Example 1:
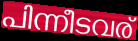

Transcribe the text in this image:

പിന്നീടവര്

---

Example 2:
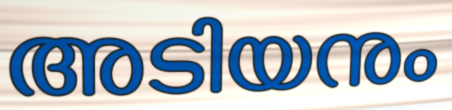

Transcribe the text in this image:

അടിയനും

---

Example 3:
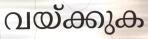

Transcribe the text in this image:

വയ്ക്കുക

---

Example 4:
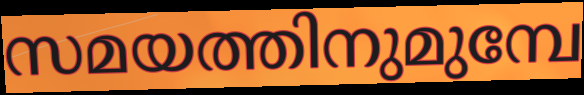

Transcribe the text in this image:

സമയത്തിനുമുമ്പേ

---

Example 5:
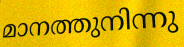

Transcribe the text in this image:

മാനത്തുനിന്നു